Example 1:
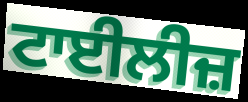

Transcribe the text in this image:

ਟਾਈਲੀਜ਼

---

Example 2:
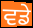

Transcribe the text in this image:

ਵਡੇ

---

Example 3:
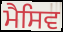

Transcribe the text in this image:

ਮੈਸਿਵ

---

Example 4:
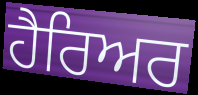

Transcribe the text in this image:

ਹੈਰਿਅਰ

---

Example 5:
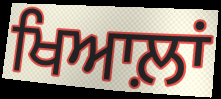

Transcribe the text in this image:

ਖਿਆਲ਼ਾਂ